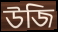
উজি